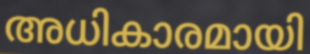
അധികാരമായി